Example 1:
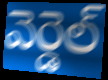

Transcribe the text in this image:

వెర్డెల్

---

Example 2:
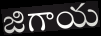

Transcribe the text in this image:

జిగాయ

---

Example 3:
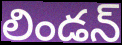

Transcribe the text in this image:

లిండన్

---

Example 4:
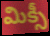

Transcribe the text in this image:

మిక్సీ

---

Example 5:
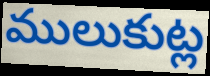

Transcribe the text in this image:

ములుకుట్ల